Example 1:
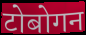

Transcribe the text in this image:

टोबोगन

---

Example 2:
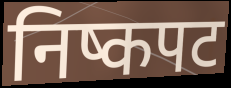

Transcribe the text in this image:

निष्कपट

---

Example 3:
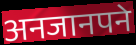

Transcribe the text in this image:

अनजानपने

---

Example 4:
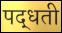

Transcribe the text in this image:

पद्धती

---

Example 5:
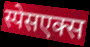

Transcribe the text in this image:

स्‍पेसएक्‍स